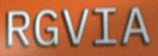
RGVIA